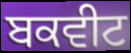
ਬਕਵੀਟ